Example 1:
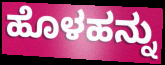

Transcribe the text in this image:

ಹೊಳಹನ್ನು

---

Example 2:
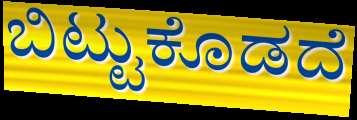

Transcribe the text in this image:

ಬಿಟ್ಟುಕೊಡದೆ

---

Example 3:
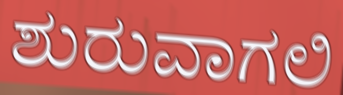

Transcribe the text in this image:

ಶುರುವಾಗಲಿ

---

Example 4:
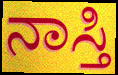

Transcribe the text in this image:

ನಾಸ್ತಿ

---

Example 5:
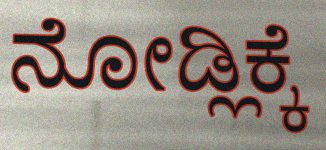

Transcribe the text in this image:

ನೋಡ್ಲಿಕ್ಕೆ